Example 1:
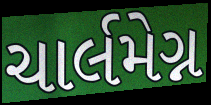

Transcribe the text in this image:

ચાર્લમેગ્ન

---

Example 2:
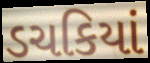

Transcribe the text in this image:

ડચકિયાં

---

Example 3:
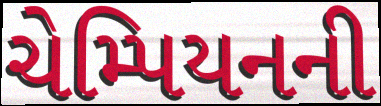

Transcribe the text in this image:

ચેમ્પિયનની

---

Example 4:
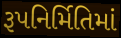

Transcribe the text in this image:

રૂપનિર્મિતિમાં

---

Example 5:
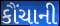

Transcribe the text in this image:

કૌંચાની